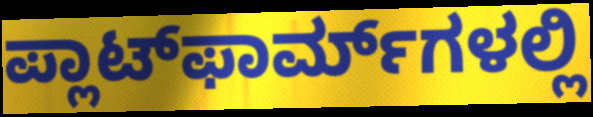
ಪ್ಲಾಟ್‌ಫಾರ್ಮ್‌ಗಳಲ್ಲಿ